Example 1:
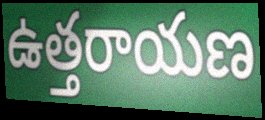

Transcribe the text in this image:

ఉత్తరాయణ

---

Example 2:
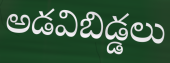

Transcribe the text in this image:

అడవిబిడ్డలు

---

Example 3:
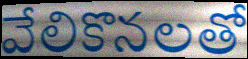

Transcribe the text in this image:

వేలికొనలతో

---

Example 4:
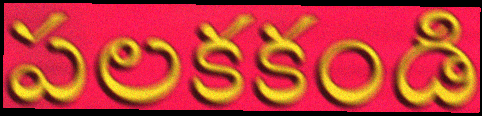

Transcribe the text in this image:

పలకకండి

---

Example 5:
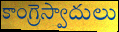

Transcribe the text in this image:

కాంగ్రెస్వాదులు